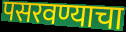
पसरवण्याचा